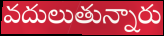
వదులుతున్నారు